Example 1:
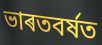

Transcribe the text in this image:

ভাৰতবৰ্ষত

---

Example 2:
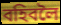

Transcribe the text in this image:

বহিবলৈ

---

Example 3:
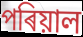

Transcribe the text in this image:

পৰিয়াল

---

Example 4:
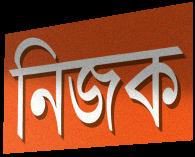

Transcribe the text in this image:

নিজক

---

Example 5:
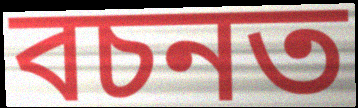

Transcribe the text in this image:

বচনত